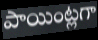
పాయింట్లగా